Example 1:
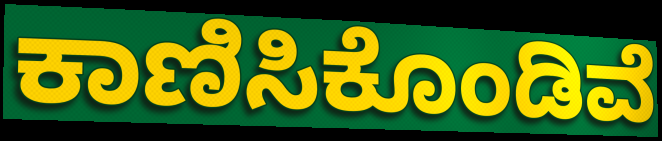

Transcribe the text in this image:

ಕಾಣಿಸಿಕೊಂಡಿವೆ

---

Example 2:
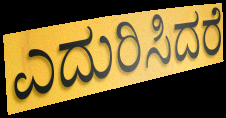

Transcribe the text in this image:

ಎದುರಿಸಿದರೆ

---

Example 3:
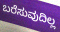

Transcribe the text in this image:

ಬರೆಸುವುದಿಲ್ಲ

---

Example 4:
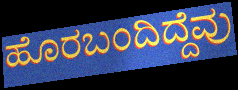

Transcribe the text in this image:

ಹೊರಬಂದಿದ್ದೆವು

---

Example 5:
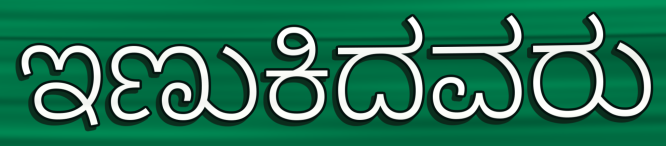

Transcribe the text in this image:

ಇಣುಕಿದವರು